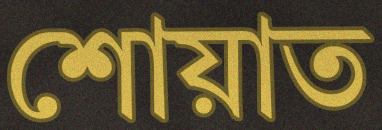
শোয়াত